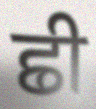
ਛੀ